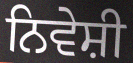
ਨਿਵੇਸ਼ੀ